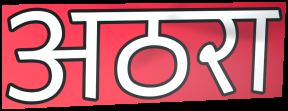
अठरा